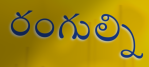
రంగుల్ని